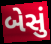
બેસું